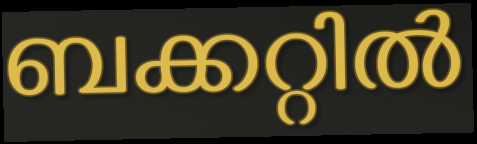
ബക്കറ്റിൽ